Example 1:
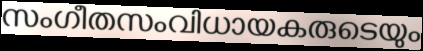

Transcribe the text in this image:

സംഗീതസംവിധായകരുടെയും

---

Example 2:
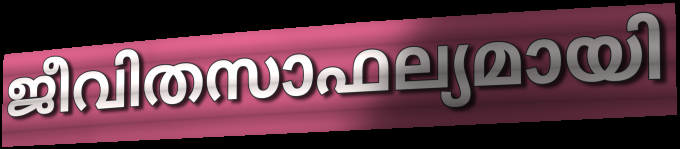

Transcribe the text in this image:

ജീവിതസാഫല്യമായി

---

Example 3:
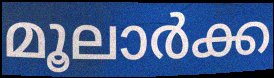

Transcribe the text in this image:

മൂലാർക്ക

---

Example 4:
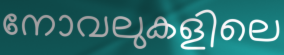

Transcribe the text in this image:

നോവലുകളിലെ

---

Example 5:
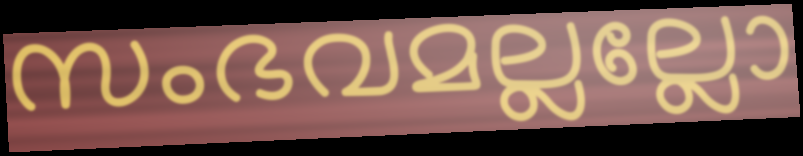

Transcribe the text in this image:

സംഭവമല്ലല്ലോ